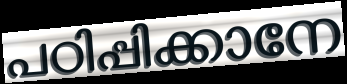
പഠിപ്പിക്കാനേ